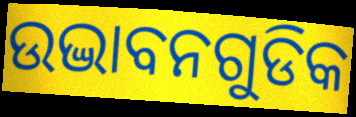
ଉଦ୍ଭାବନଗୁଡିକ